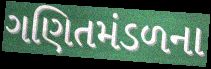
ગણિતમંડળના